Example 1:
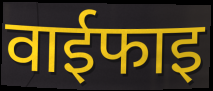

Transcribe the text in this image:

वाईफाइ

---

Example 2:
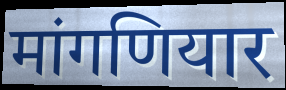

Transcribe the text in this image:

मांगणियार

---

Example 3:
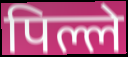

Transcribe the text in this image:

पिल्ले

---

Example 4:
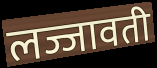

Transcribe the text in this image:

लज्जावती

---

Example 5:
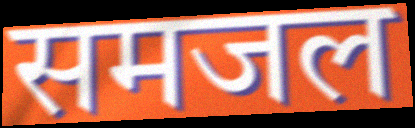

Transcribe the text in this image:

समजल